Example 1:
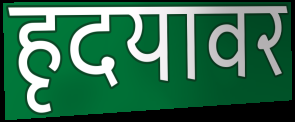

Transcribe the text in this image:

हृदयावर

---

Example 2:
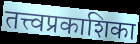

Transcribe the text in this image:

तत्त्वप्रकाशिका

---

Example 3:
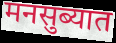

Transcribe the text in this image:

मनसुब्यात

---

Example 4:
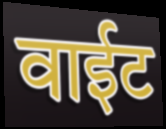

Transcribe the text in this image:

वाईट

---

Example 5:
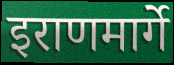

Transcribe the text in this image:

इराणमार्गे